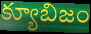
క్యూబిజం